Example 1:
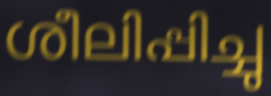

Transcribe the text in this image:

ശീലിപ്പിച്ചു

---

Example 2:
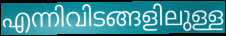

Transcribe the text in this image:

എന്നിവിടങ്ങളിലുള്ള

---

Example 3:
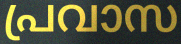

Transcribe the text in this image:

പ്രവാസ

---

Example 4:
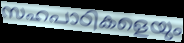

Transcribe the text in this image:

സഹപാഠികളെയും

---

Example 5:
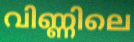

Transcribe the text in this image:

വിണ്ണിലെ